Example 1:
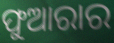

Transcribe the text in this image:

ଫୁଆରାର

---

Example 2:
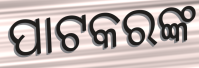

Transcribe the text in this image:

ପାଟକରଙ୍କ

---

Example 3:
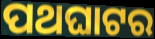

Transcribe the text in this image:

ପଥଘାଟର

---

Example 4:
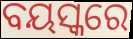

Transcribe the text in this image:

ବୟସ୍କରେ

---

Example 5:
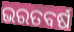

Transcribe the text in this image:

ଭରତବର୍ଷ